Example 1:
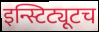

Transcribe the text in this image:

इन्स्टिट्यूटच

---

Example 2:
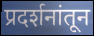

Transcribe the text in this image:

प्रदर्शनांतून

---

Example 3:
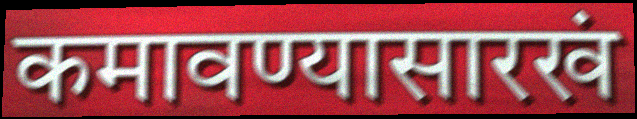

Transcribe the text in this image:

कमावण्यासारखं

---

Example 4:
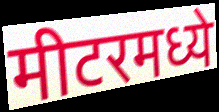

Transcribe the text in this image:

मीटरमध्ये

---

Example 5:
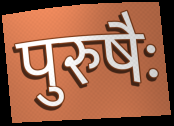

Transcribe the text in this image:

पुरुषैः